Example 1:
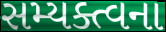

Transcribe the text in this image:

સમ્યક્ત્વના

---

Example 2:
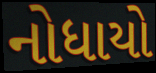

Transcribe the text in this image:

નોધાયો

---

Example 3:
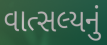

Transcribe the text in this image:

વાત્સલ્યનું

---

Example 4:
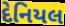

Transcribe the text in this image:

દેનિયલ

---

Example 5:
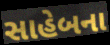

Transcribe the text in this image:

સાહેબના